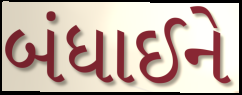
બંધાઈને